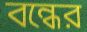
বন্ধের